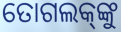
ତୋଗଲକ୍‌ଙ୍କୁ